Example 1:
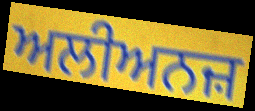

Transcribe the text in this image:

ਅਲੀਅਨਜ਼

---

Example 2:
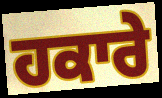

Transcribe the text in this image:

ਹਕਾਰੇ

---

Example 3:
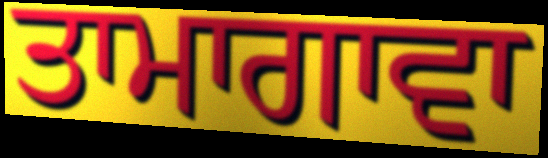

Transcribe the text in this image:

ਤਾਮਾਗਾਵਾ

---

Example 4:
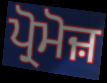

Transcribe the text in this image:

ਪ੍ਰੋਮੋਜ਼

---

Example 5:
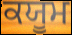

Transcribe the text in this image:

ਕਯੂਮ